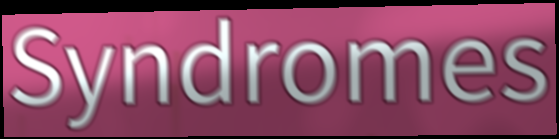
Syndromes